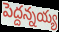
పెద్దన్నయ్య